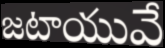
జటాయువే